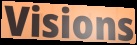
Visions